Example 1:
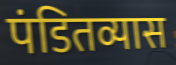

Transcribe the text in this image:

पंडितव्यास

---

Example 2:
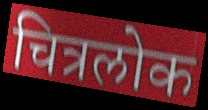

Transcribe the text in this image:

चित्रलोक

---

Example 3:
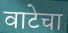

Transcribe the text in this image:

वाटेचा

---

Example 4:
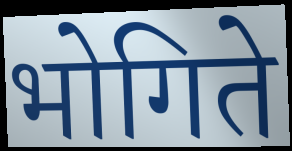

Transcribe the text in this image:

भोगिते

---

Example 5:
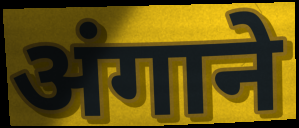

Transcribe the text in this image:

अंगाने